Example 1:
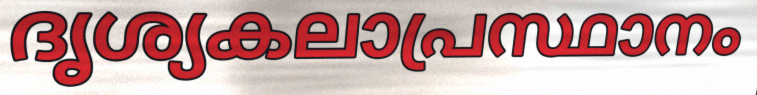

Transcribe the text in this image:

ദൃശ്യകലാപ്രസ്ഥാനം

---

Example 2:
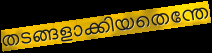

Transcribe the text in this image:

തടങ്ങളാക്കിയതെന്തേ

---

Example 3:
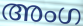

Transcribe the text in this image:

അംഗ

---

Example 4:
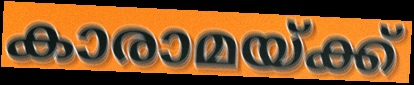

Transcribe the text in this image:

കാരാമയ്ക്ക്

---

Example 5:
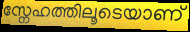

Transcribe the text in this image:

സ്നേഹത്തിലൂടെയാണ്